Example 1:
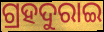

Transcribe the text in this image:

ଗ୍ରହଦୁରାଇ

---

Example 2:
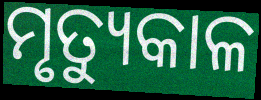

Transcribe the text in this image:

ମୃତ୍ୟୁକାଳ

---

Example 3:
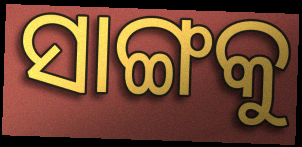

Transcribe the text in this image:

ସାଙ୍ଗକୁ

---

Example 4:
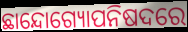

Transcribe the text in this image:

ଛାନ୍ଦୋଗ୍ୟୋପନିଷଦରେ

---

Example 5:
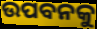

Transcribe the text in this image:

ଉପବନକୁ